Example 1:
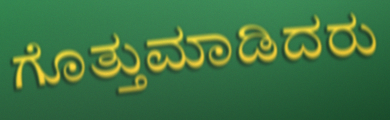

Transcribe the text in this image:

ಗೊತ್ತುಮಾಡಿದರು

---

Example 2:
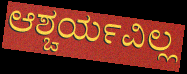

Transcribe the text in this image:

ಆಶ್ಚರ್ಯವಿಲ್ಲ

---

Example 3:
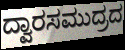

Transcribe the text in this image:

ದ್ವಾರಸಮುದ್ರದ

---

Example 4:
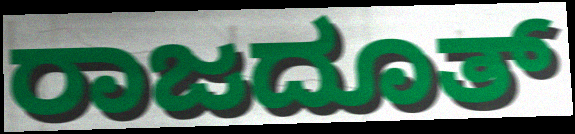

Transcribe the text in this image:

ರಾಜದೂತ್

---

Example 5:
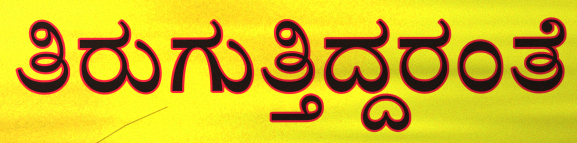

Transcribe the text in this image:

ತಿರುಗುತ್ತಿದ್ದರಂತೆ